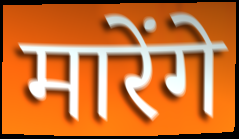
मारेंगे